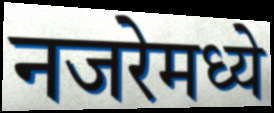
नजरेमध्ये